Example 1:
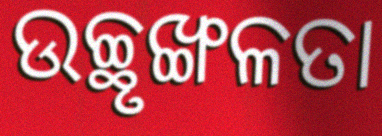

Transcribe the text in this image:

ଉଚ୍ଛୃଙ୍ଖଳତା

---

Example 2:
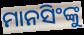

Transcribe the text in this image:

ମାନସିଂଙ୍କୁ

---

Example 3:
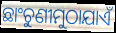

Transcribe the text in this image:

ଛାଂଚୁଣୀମୁଠାଯାଏଁ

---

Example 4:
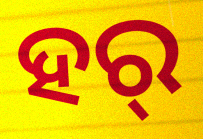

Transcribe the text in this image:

ହର୍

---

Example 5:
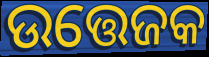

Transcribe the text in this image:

ଉତ୍ତେଜକ